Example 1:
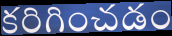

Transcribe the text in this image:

కరిగించడం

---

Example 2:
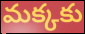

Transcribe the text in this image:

మక్కకు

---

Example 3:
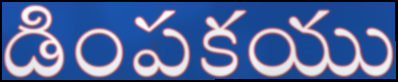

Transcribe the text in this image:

డింపకయు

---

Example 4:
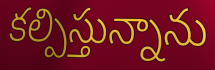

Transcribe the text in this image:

కల్పిస్తున్నాను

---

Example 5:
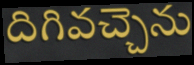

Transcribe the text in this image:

దిగివచ్చెను